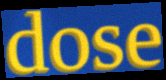
dose